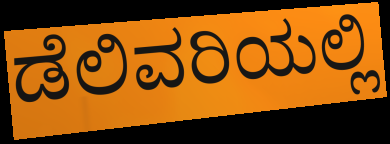
ಡೆಲಿವರಿಯಲ್ಲಿ